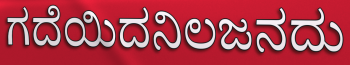
ಗದೆಯಿದನಿಲಜನದು